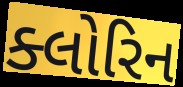
ક્લોરિન